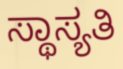
ಸ್ಥಾಸ್ಯತಿ